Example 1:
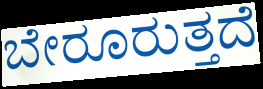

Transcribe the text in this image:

ಬೇರೂರುತ್ತದೆ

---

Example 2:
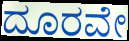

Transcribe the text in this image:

ದೂರವೇ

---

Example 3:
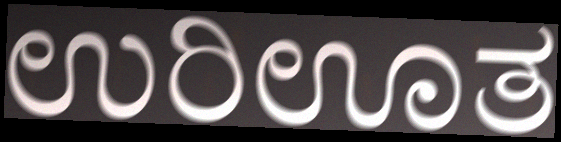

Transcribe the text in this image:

ಉರಿಊತ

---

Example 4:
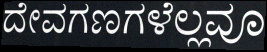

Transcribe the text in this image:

ದೇವಗಣಗಳೆಲ್ಲವೂ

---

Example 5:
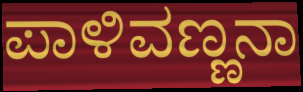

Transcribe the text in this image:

ಪಾಳಿವಣ್ಣನಾ